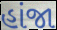
હાંજા